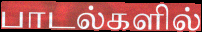
பாடல்களில்